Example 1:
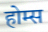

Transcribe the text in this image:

होम्स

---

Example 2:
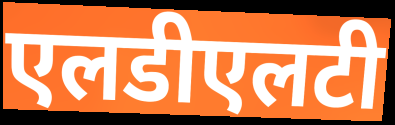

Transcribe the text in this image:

एलडीएलटी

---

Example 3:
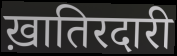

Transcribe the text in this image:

ख़ातिरदारी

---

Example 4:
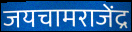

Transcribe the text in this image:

जयचामराजेंद्र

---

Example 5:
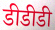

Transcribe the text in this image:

डीडीडी